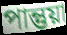
পান্তুয়া